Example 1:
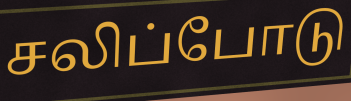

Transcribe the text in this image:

சலிப்போடு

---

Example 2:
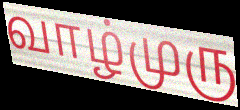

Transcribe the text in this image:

வாழ்முரு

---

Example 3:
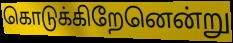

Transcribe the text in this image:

கொடுக்கிறேனென்று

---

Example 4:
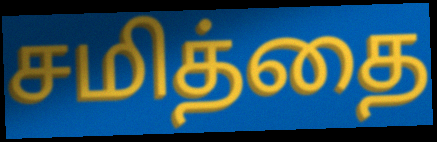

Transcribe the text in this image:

சமித்தை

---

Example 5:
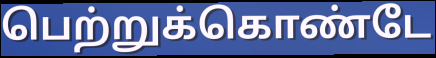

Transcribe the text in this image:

பெற்றுக்கொண்டே